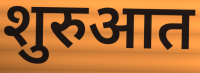
शुरुआत